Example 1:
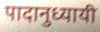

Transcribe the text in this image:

पादानुध्यायी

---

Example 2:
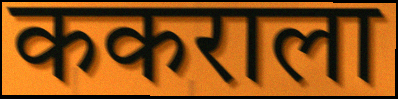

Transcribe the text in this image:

ककराला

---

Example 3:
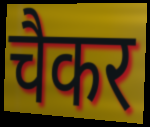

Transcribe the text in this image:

चैकर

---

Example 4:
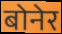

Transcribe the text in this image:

बोनेर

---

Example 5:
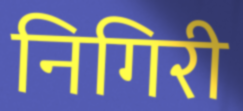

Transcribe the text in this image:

निगिरी